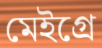
মেইগ্রে